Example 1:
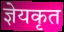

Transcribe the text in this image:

ज्ञेयकृत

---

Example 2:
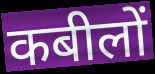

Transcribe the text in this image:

कबीलों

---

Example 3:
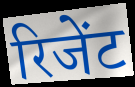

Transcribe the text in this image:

रिजेंट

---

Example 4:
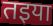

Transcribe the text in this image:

तइया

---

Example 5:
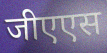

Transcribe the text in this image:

जीएएस